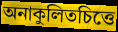
অনাকুলিতচিত্তে